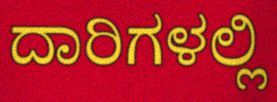
ದಾರಿಗಳಲ್ಲಿ